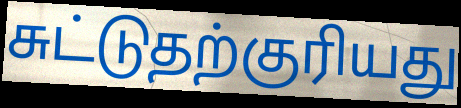
சுட்டுதற்குரியது